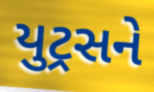
યુટ્રસને